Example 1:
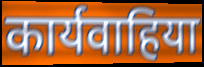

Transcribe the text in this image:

कार्यवाहिया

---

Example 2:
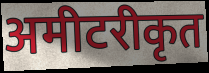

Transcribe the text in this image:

अमीटरीकृत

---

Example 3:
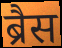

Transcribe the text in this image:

ब्रैस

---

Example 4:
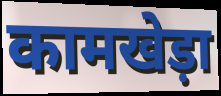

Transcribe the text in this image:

कामखेड़ा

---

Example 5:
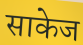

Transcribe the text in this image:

साकेज